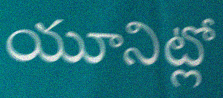
యూనిట్లో